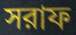
সরাফ